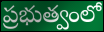
ప్రభుత్వంలో